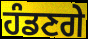
ਹੰਡਣਗੇ